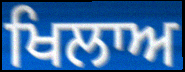
ਖਿਲਾਅ